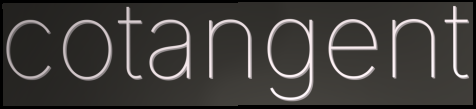
cotangent